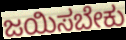
ಜಯಿಸಬೇಕು